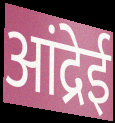
आंद्रेई